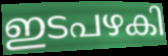
ഇടപഴകി